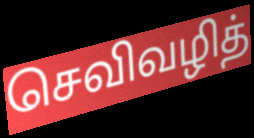
செவிவழித்